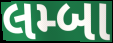
લમ્બા